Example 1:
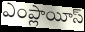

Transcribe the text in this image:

ఎంప్లాయీస్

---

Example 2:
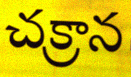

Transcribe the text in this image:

చక్రాన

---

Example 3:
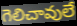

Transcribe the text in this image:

గెలిచావులే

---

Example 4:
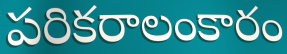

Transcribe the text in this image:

పరికరాలంకారం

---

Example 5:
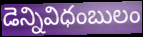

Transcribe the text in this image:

డెన్నివిధంబులం